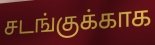
சடங்குக்காக